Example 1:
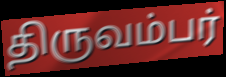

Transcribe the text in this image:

திருவம்பர்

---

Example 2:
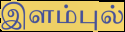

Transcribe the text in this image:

இளம்புல்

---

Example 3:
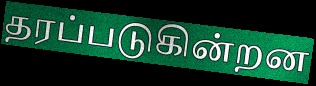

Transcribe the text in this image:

தரப்படுகின்றன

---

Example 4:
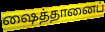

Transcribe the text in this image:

ஷைத்தானைப்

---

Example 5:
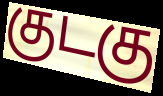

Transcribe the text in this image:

குடகு